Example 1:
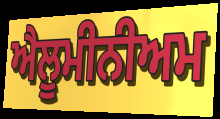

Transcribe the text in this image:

ਐਲੂਮੀਨੀਅਮ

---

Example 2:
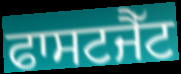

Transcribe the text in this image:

ਫਾਸਟਜੈੱਟ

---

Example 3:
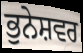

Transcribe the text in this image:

ਭੁਨੇਸ਼ਵਰ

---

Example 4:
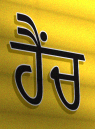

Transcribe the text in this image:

ਹੈਂਚ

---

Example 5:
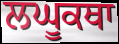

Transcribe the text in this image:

ਲਘੂਕਥਾ